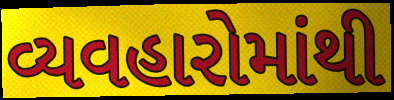
વ્યવહારોમાંથી